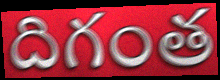
దిగంత